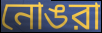
নোঙরা